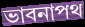
ভাবনাপথ